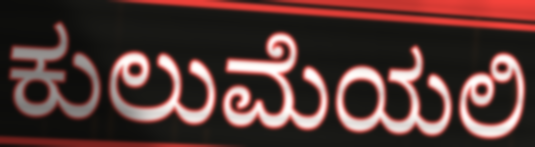
ಕುಲುಮೆಯಲಿ